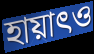
হায়াৎও